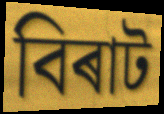
বিৰাট